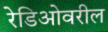
रेडिओवरील